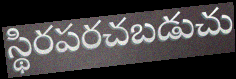
స్థిరపరచబడుచు